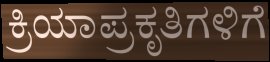
ಕ್ರಿಯಾಪ್ರಕೃತಿಗಳಿಗೆ